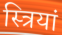
स्त्रियां